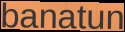
banatun